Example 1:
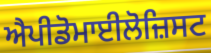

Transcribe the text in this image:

ਐਪੀਡੋਮਾਈਲੋਜ਼ਿਸਟ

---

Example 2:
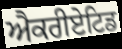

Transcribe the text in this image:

ਐਕਰੀਏਟਿਡ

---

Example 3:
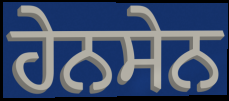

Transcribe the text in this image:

ਹੇਨਸੇਨ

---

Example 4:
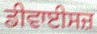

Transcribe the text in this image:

ਡੀਵਾਈਸਜ਼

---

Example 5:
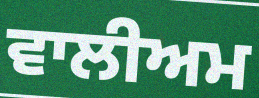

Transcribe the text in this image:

ਵਾਲੀਅਮ